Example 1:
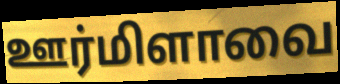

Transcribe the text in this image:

ஊர்மிளாவை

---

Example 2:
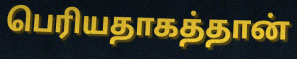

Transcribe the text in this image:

பெரியதாகத்தான்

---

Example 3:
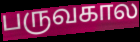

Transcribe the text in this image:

பருவகால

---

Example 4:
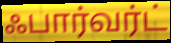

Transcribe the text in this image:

ஃபார்வர்ட்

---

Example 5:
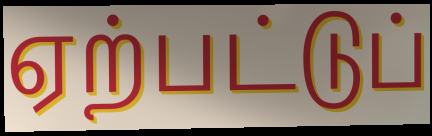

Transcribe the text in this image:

ஏற்பட்டுப்